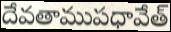
దేవతాముపధావేత్